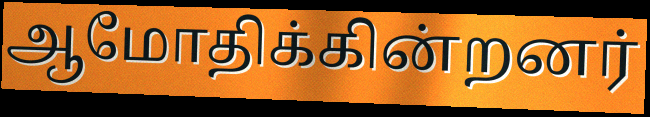
ஆமோதிக்கின்றனர்